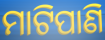
ମାଟିପାଣି